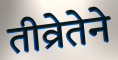
तीव्रेतेने